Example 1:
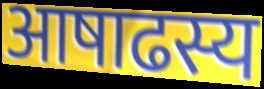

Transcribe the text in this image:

आषाढस्य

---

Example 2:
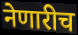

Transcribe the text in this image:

नेणारीच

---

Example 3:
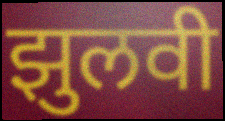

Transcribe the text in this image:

झुलवी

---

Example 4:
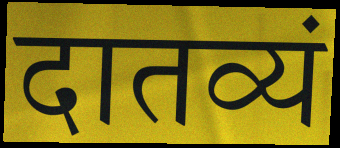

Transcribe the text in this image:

दातव्यं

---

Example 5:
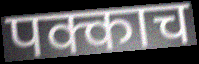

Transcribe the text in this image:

पक्काच